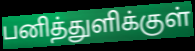
பனித்துளிக்குள்